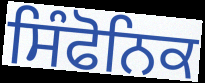
ਸਿੰਫੋਨਿਕ